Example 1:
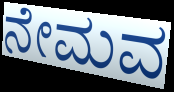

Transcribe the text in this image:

ನೇಮವ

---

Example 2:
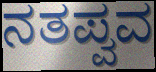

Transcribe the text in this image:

ನತಪ್ವವ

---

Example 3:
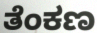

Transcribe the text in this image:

ತೆಂಕಣ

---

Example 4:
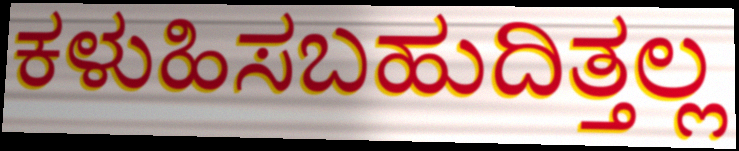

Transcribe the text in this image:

ಕಳುಹಿಸಬಹುದಿತ್ತಲ್ಲ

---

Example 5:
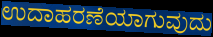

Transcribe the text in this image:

ಉದಾಹರಣೆಯಾಗುವುದು